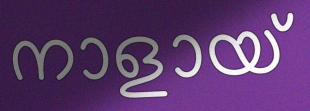
നാളായ്